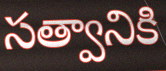
సత్వానికి